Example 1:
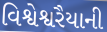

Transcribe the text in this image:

વિશ્વેશ્વરૈયાની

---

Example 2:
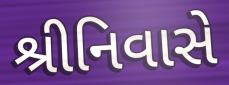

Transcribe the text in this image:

શ્રીનિવાસે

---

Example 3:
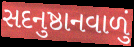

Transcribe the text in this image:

સદનુષ્ઠાનવાળું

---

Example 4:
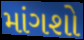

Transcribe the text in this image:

માંગશો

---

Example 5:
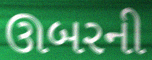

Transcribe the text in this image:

ઊબરની